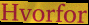
Hvorfor